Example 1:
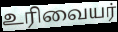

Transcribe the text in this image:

உரிவையர்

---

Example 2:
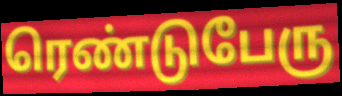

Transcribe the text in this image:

ரெண்டுபேரு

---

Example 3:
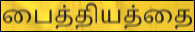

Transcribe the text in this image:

பைத்தியத்தை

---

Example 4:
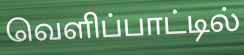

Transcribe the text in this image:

வெளிப்பாட்டில்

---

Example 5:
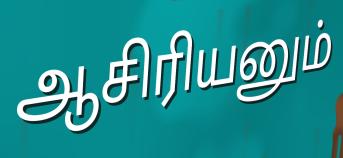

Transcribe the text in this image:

ஆசிரியனும்